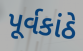
પૂર્વકાંઠે